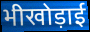
भीखोड़ाई